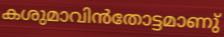
കശുമാവിൻതോട്ടമാണു്